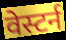
वेस्‍टर्न